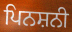
ਪਿਨਸ਼ਨੀ